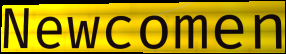
Newcomen